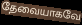
தேவையாகவே